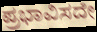
ಪ್ರಭಾವಿಸದೇ